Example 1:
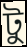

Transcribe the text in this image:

টু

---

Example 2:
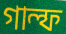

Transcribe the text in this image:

গাল্ফ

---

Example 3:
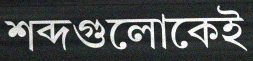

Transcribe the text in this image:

শব্দগুলোকেই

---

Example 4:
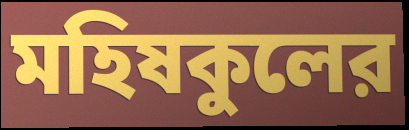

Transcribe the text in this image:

মহিষকুলের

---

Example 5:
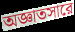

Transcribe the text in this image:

অজ্ঞাতসারে